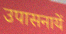
उपासनायें